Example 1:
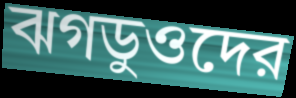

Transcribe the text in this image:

ঝগডুওদের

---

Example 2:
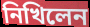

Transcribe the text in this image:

নিখিলেন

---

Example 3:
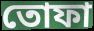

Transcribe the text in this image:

তোফা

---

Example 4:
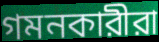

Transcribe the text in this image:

গমনকারীরা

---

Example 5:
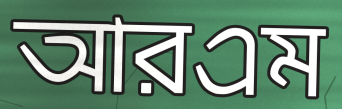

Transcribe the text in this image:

আরএম